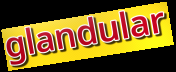
glandular